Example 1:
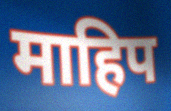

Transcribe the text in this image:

माहिप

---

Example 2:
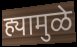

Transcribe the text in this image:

ह्यामुळे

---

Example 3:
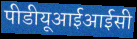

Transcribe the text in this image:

पीडीयूआईआईसी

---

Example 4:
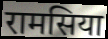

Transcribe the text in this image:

रामसिया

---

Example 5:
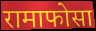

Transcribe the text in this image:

रामाफोसा